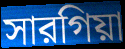
সারগিয়া